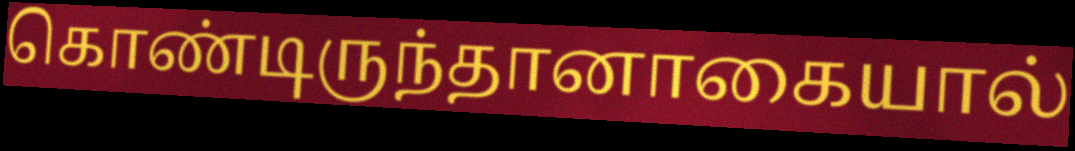
கொண்டிருந்தானாகையால்